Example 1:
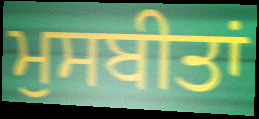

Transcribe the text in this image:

ਮੁਸਬੀਤਾਂ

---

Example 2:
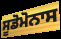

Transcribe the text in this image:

ਸੂਡੋਮੋਨਾਸ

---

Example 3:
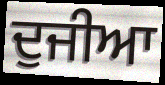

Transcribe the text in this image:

ਦੁਜੀਆ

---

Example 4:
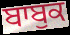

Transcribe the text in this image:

ਬਾਬੁਕ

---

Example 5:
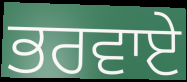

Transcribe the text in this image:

ਭਰਵਾਏ